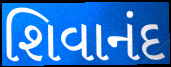
શિવાનંદ